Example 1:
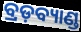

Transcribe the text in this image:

ବ୍ରଡ଼ବ୍ୟାଣ୍ଡ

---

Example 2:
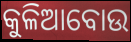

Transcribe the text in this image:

କୁଳିଆବୋଉ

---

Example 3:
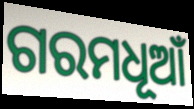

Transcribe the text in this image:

ଗରମଧୂଆଁ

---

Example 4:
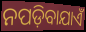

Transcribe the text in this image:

ନପଡ଼ିବାଯାଏଁ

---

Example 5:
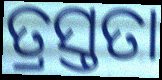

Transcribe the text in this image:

ତ୍ରସ୍ତତା